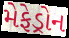
મેફેડ્રોન